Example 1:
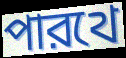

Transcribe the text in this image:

পারথে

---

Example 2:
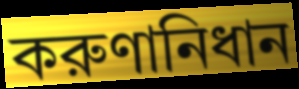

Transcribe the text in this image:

করুণানিধান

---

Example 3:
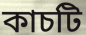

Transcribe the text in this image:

কাচটি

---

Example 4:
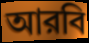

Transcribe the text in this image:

আরবি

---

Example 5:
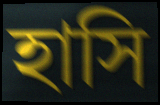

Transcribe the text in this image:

হাসি